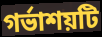
গর্ভাশয়টি